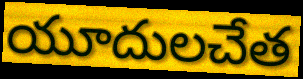
యూదులచేత